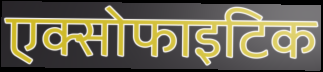
एक्सोफाइटिक